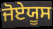
ਜੋਏਯੂਸ